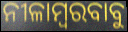
ନୀଳାମ୍ବରବାବୁ